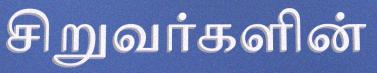
சிறுவர்களின்